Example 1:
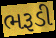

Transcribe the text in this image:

ભરૂડી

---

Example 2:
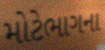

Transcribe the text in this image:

મોટેભાગના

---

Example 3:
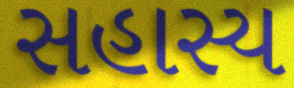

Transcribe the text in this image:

સહાસ્ય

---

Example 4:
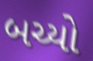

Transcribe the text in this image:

બચ્યો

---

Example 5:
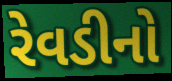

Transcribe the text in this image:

રેવડીનો